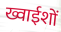
ख्वाईशों